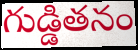
గుడ్డితనం